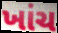
ખાંચ